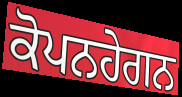
ਕੋਪਨਹੇਗਨ